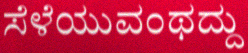
ಸೆಳೆಯುವಂಥದ್ದು